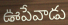
ఊపేవాడు